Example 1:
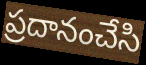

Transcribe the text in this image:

ప్రదానంచేసి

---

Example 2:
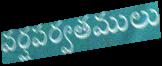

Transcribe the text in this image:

వర్షపర్వతములు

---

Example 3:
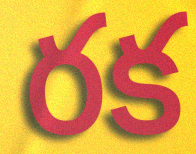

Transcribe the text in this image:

రక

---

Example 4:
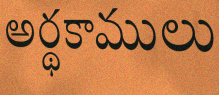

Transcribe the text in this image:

అర్థకాములు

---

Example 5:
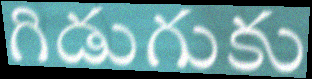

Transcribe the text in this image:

గిడుగుకు